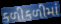
કળીકળીમાં